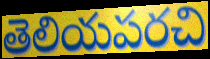
తెలియపరచి